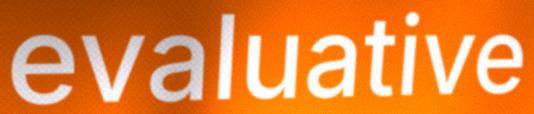
evaluative